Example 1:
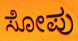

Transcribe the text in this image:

ಸೋಪು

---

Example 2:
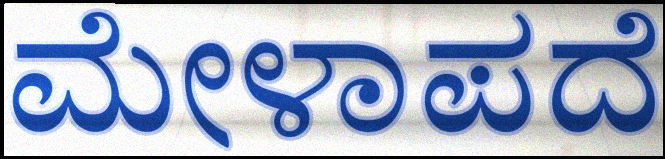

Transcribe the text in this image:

ಮೇಳಾಪದೆ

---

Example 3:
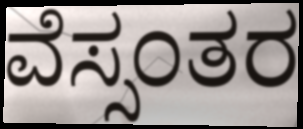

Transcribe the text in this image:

ವೆಸ್ಸಂತರ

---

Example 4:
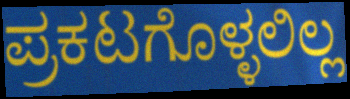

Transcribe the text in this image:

ಪ್ರಕಟಗೊಳ್ಳಲಿಲ್ಲ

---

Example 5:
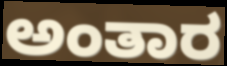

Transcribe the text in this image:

ಅಂತಾರ